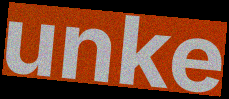
unke